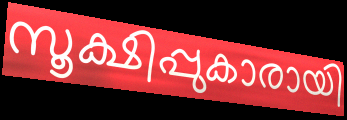
സൂക്ഷിപ്പുകാരായി